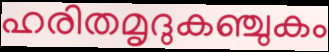
ഹരിതമൃദുകഞ്ചുകം